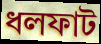
ধলফাট